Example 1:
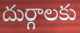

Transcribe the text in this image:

దుర్గాలకు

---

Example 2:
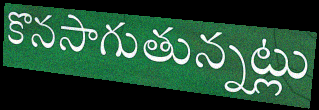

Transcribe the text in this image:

కొనసాగుతున్నట్లు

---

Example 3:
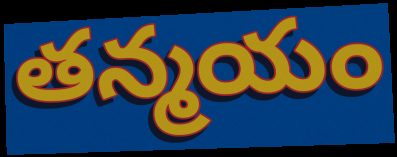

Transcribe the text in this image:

తన్మయం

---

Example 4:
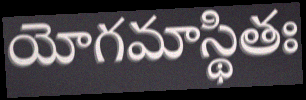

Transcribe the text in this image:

యోగమాస్థితః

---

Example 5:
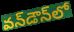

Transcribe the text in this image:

వన్‌డౌన్‌లో